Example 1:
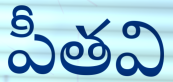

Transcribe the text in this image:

పీతవి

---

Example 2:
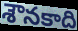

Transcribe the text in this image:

శౌనకాది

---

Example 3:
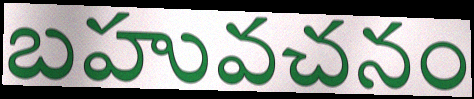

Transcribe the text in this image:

బహువచనం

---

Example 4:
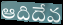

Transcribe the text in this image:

ఆదిదేవ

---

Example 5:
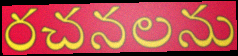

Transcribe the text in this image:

రచనలను